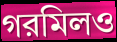
গরমিলও